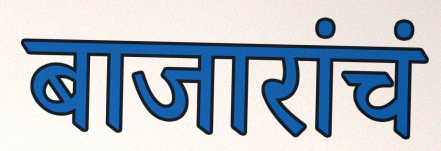
बाजारांचं